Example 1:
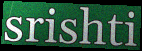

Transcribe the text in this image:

srishti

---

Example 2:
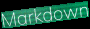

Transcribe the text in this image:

Markdown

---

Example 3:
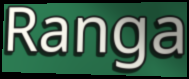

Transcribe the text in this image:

Ranga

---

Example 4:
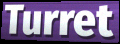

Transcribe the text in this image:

Turret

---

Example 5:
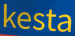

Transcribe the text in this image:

kesta